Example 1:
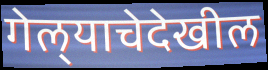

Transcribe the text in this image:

गेल्याचेदेखील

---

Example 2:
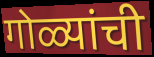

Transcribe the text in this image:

गोळ्यांची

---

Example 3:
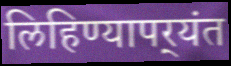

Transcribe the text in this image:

लिहिण्यापर्यंत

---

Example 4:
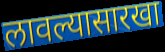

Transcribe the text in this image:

लावल्यासारखा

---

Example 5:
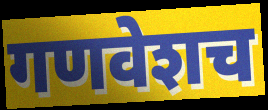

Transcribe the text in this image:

गणवेशच